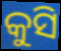
କୁସି